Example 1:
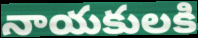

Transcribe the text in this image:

నాయకులకి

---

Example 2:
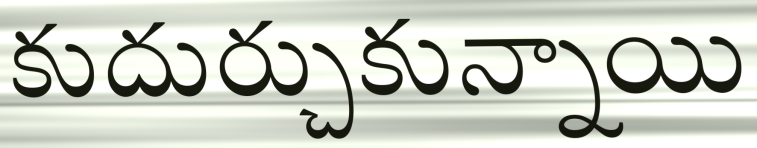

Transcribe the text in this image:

కుదుర్చుకున్నాయి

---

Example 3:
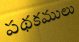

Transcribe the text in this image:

పథకములు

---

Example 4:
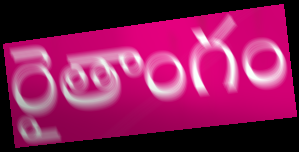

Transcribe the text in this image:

రైతాంగం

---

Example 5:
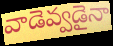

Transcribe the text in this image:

వాడెవ్వడైనా